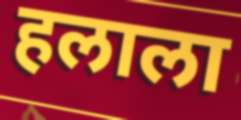
हलाला